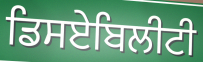
ਡਿਸਏਬਿਲੀਟੀ